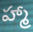
హ్మా